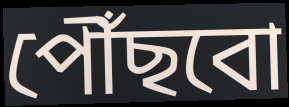
পৌঁছবো